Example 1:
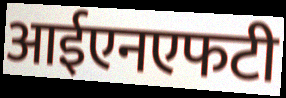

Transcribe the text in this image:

आईएनएफटी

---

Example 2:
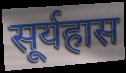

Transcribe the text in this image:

सूर्यहास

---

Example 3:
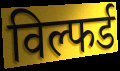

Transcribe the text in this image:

विल्फर्ड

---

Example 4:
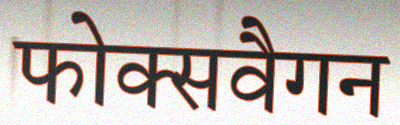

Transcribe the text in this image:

फोक्सवैगन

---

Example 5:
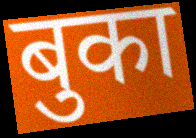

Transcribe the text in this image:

बुका